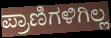
ಪ್ರಾಣಿಗಳಿಗಿಲ್ಲ